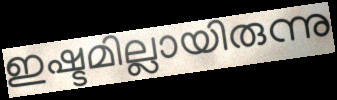
ഇഷ്ടമില്ലായിരുന്നു